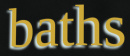
baths